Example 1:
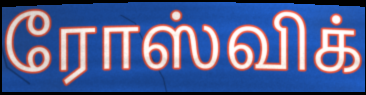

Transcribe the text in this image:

ரோஸ்விக்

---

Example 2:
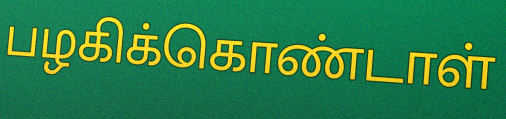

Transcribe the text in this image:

பழகிக்கொண்டாள்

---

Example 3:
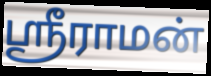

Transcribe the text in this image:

ஸ்ரீராமன்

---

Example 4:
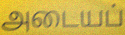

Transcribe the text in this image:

அடையப்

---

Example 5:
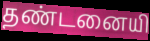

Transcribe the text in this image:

தண்டனையி